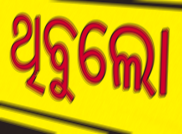
ଥିବୁଲୋ